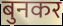
बुनकर